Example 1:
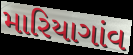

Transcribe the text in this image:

મારિયાગાંવ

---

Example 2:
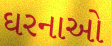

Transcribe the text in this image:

ઘરનાઓ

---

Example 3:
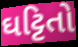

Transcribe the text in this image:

ઘટ્ટિતો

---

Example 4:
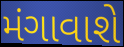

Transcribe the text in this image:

મંગાવાશે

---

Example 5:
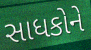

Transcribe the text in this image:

સાધકોને